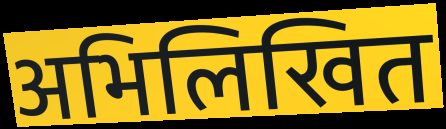
अभिलिखित